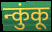
न्कुंकू